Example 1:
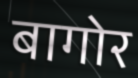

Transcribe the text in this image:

बागोर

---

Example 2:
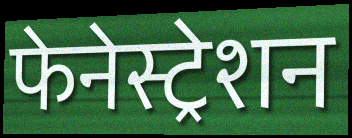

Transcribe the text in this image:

फेनेस्ट्रेशन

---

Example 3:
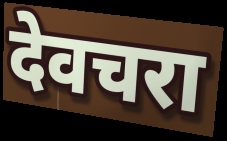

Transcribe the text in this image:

देवचरा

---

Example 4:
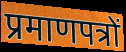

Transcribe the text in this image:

प्रमाणपत्रों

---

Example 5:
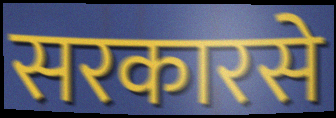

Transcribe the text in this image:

सरकारसे